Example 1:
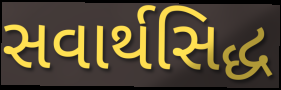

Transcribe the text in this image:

સવાર્થસિદ્ધ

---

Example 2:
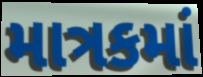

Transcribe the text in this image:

માત્રકમાં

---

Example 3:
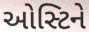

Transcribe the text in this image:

ઓસ્ટિને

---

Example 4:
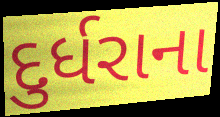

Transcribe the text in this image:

દુર્ધરાના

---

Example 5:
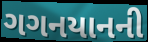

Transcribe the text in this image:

ગગનયાનની